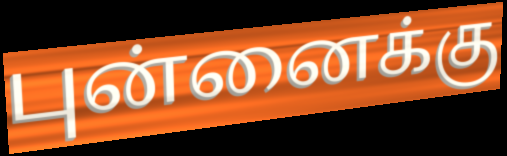
புன்னைக்கு